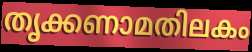
തൃക്കണാമതിലകം